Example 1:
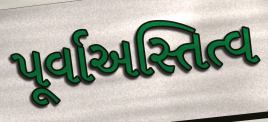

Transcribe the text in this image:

પૂર્વાઅસ્તિત્વ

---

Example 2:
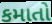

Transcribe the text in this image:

કમાતો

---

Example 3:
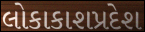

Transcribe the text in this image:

લોકાકાશપ્રદેશ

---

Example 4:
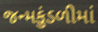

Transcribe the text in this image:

જન્મકુંડળીમાં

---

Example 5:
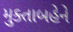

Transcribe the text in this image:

મુક્તાબહેને